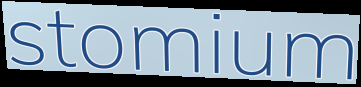
stomium